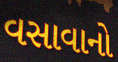
વસાવાનો